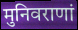
मुनिवराणां